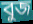
বুজ